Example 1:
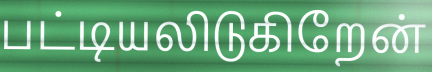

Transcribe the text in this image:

பட்டியலிடுகிறேன்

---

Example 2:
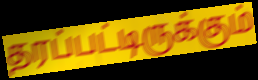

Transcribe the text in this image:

தரப்பட்டிருக்கும்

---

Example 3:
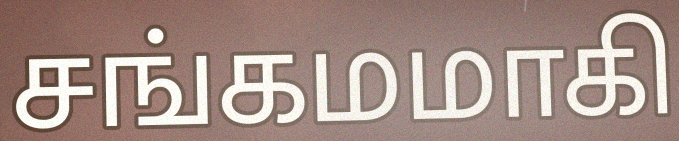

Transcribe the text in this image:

சங்கமமாகி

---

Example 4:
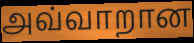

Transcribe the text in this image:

அவ்வாறான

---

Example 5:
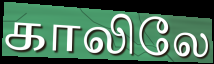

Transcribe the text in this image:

காலிலே